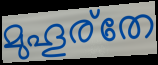
മുഹൂര്തേ